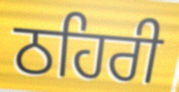
ਠਹਿਰੀ